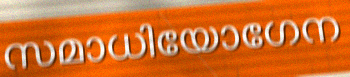
സമാധിയോഗേന